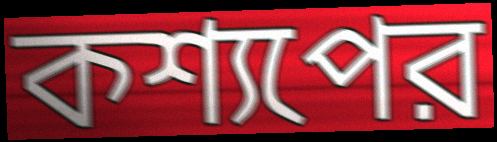
কশ্যপের